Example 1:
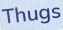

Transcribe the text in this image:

Thugs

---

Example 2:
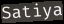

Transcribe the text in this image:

Satiya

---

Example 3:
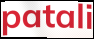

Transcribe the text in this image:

patali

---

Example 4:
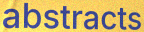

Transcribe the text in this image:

abstracts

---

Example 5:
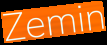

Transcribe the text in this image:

Zemin